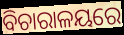
ବିଚାରାଳୟରେ